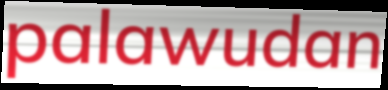
palawudan